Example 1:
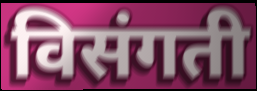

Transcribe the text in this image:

विसंगती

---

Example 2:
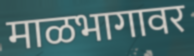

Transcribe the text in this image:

माळभागावर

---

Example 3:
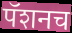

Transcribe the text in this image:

पॅशनच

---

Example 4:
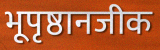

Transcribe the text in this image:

भूपृष्ठानजीक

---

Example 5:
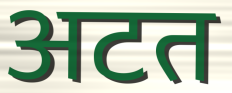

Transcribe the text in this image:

अटत